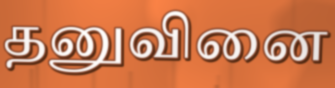
தனுவினை